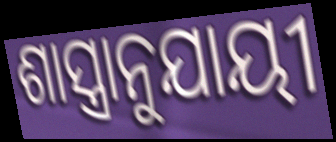
ଶାସ୍ତ୍ରାନୁଯାୟୀ